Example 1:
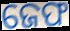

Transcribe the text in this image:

ଜେଫ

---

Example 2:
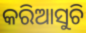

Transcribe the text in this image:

କରିଆସୁଚି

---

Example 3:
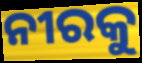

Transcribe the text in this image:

ନୀରକୁ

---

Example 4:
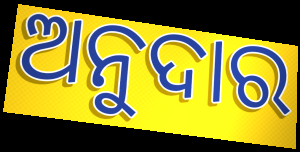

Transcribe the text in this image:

ଅନୁଦାର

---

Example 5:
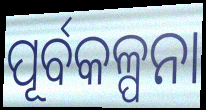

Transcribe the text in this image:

ପୂର୍ବକଳ୍ପନା